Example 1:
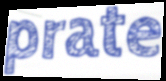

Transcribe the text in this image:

prate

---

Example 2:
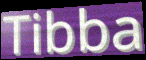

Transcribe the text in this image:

Tibba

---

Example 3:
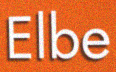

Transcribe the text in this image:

Elbe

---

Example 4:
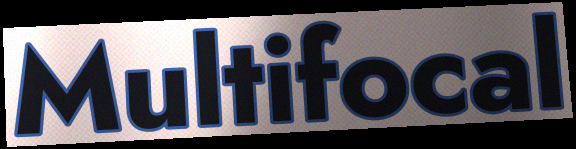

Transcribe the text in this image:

Multifocal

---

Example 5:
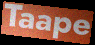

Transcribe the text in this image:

Taape